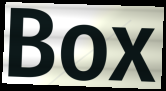
Box